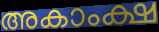
അകാംക്ഷ